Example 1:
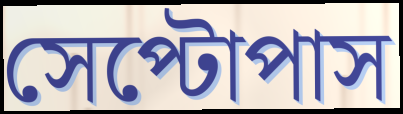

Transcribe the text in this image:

সেপ্টোপাস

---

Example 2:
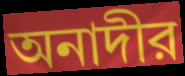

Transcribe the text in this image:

অনাদীর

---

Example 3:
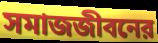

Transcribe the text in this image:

সমাজজীবনের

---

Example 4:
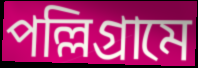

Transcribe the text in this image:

পল্লিগ্রামে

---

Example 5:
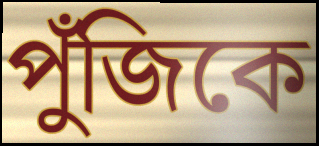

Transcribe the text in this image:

পুঁজিকে